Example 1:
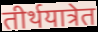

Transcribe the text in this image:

तीर्थयात्रेत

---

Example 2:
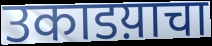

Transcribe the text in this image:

उकाडय़ाचा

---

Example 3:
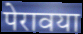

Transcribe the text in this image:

पेरावया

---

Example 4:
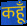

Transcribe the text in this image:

कहूँ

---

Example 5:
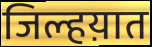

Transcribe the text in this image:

जिल्हय़ात